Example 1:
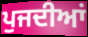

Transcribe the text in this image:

ਪੁਜਦੀਆਂ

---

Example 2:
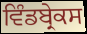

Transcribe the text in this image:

ਵਿੰਡਬ੍ਰੇਕਸ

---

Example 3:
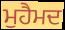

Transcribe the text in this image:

ਮੁਹੈਮਦ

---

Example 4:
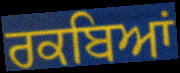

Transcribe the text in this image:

ਰਕਬਿਆਂ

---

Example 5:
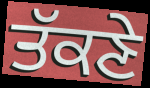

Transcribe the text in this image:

ਤੱਕਣੇ